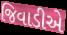
જિવાડીએ